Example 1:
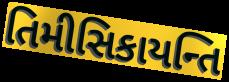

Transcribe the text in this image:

તિમીસિકાયન્તિ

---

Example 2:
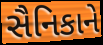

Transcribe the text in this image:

સૈનિકાને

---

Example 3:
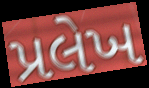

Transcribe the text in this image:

પ્રલેખ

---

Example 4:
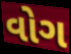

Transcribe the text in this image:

વોગ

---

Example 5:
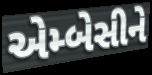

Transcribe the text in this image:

એમ્બેસીને